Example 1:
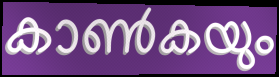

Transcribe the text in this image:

കാൺകയും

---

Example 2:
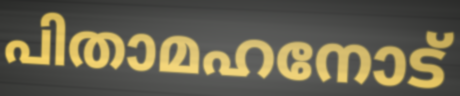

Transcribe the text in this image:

പിതാമഹനോട്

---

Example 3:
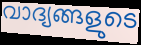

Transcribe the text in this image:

വാദ്യങ്ങളുടെ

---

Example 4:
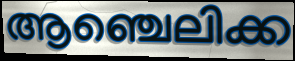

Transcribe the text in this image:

ആഞ്ചെലിക്ക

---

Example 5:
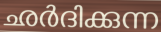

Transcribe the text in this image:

ഛർദിക്കുന്ന